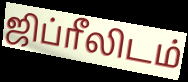
ஜிப்ரீலிடம்